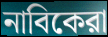
নাবিকেরা